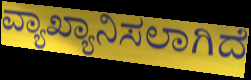
ವ್ಯಾಖ್ಯಾನಿಸಲಾಗಿದೆ